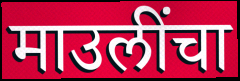
माउलींचा